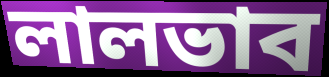
লালভাব